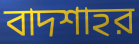
বাদশাহর